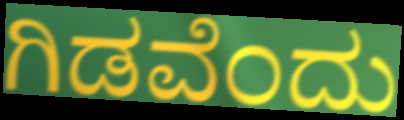
ಗಿಡವೆಂದು